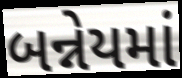
બન્નેયમાં